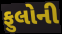
ફુલોની